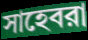
সাহেবরা